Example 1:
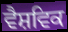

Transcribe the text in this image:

ਵੈਸ਼ਵਿਕ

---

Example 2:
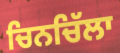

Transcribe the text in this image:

ਚਿਨਚਿੱਲਾ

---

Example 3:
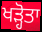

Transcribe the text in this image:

ਖੜ੍ਹੋਤਾ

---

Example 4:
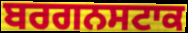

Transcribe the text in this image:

ਬਰਗਨਸਟਾਕ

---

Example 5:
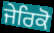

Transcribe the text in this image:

ਜੇਰਿਕੋ